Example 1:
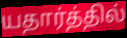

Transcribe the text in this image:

யதார்த்தில்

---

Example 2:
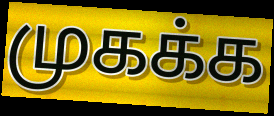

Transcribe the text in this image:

முகக்க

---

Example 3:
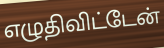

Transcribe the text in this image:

எழுதிவிட்டேன்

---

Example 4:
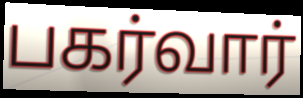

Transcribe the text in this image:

பகர்வார்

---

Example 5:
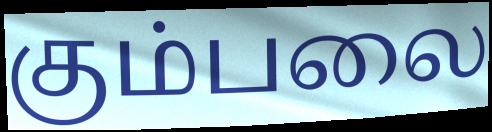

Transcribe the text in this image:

கும்பலை